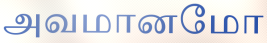
அவமானமோ